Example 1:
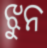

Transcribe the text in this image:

ଝୁନ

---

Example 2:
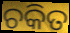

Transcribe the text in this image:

ଚକିତ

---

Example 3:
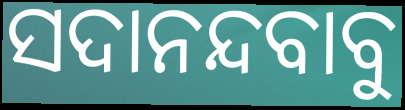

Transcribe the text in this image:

ସଦାନନ୍ଦବାବୁ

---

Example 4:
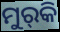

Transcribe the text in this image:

ମୁର୍‌କି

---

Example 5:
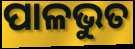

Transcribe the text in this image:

ପାଳଭୁତ